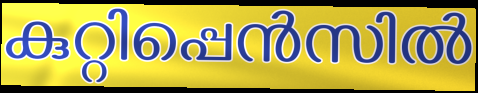
കുറ്റിപ്പെൻസിൽ